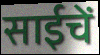
साईचें